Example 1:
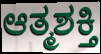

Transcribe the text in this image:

ಆತ್ಮಶಕ್ತಿ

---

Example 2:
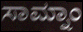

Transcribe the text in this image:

ಸಾಮ್ನಾಂ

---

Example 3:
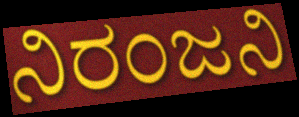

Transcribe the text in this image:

ನಿರಂಜನಿ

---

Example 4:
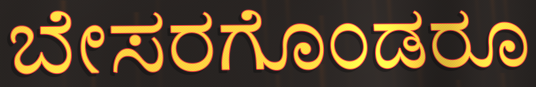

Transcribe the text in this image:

ಬೇಸರಗೊಂಡರೂ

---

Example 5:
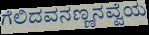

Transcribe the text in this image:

ಗೆಲಿದವನಣ್ಣನವ್ವೆಯ